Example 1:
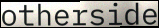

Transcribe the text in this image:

otherside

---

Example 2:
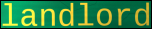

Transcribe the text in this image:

landlord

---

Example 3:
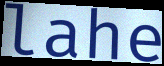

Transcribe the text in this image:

lahe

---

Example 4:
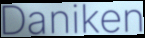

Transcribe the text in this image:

Daniken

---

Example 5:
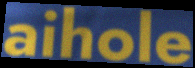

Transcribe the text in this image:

aihole